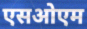
एसओएम